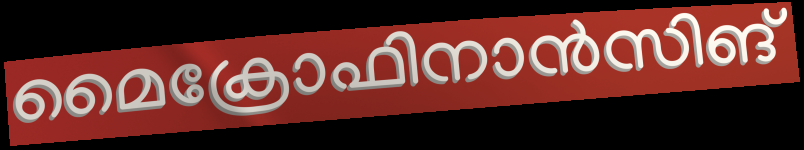
മൈക്രോഫിനാൻസിങ്